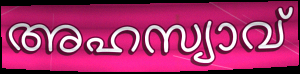
അഹസ്യാവ്